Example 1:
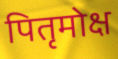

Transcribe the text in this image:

पितृमोक्ष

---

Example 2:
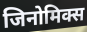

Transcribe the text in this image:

जिनोमिक्स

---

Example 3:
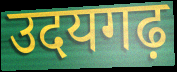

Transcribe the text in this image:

उदयगढ़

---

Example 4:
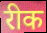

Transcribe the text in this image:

रीक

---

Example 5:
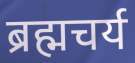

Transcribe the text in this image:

ब्रह्मचर्य